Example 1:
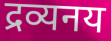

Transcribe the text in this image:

द्रव्यनय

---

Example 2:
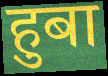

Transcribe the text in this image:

हुबा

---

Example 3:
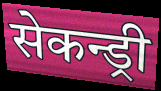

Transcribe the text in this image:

सेकन्ड्री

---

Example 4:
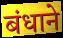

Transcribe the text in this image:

बंधाने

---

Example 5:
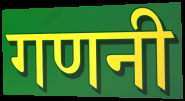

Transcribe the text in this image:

गणनी